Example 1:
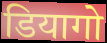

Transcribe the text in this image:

डियागो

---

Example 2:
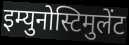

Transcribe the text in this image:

इम्युनोस्टिमुलेंट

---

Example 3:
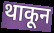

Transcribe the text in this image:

थाकून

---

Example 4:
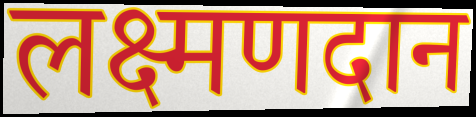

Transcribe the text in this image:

लक्ष्मणदान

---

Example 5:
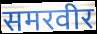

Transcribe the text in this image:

समरवीर